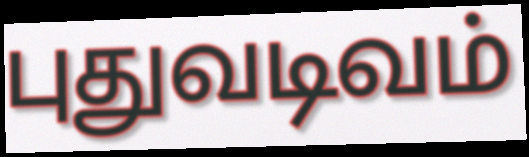
புதுவடிவம்